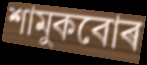
শামুকবোৰ